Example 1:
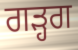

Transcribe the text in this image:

ਗੜ੍ਹਗ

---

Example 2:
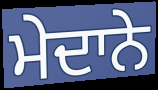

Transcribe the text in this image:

ਮੇਦਾਨੇ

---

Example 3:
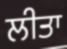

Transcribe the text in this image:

ਲੀਤਾ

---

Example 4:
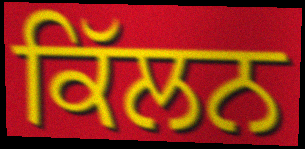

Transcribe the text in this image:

ਕਿੱਲਨ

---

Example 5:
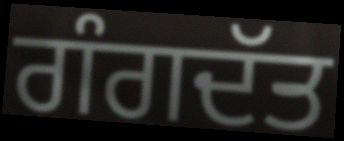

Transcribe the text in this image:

ਗੰਗਦੱਤ